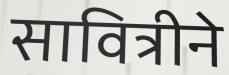
सावित्रीने